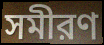
সমীরণ